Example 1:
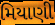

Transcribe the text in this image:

મિયાણી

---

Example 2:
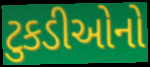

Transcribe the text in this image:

ટુકડીઓનો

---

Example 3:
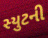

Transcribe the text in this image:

સ્યુટની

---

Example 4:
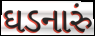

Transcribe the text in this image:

ઘડનારું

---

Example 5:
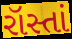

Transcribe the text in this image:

રૉસ્તાં